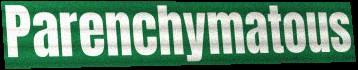
Parenchymatous